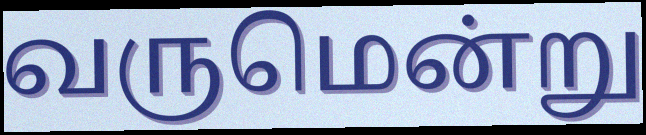
வருமென்று